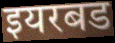
इयरबड